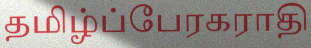
தமிழ்ப்பேரகராதி